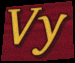
Vy